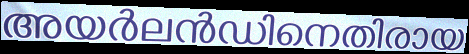
അയർലൻഡിനെതിരായ